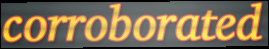
corroborated